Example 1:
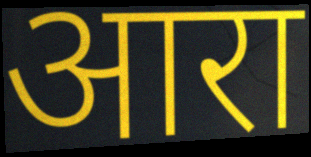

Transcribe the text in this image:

आरा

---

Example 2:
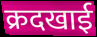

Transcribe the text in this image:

क्रदखाई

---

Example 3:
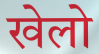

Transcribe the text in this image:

खेलो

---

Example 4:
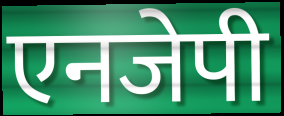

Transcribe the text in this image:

एनजेपी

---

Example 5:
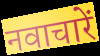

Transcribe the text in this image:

नवाचारें